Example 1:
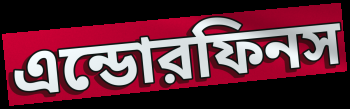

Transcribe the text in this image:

এন্ডোরফিনস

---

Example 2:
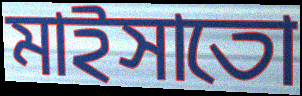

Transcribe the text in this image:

মাইসাতো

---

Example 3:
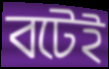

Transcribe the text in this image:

বটেই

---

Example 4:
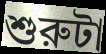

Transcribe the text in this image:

শুরুটা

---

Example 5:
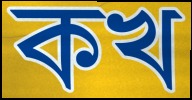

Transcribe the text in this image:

কখ